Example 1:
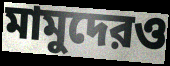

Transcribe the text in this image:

মামুদেরও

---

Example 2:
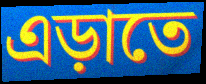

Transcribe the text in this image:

এড়াতে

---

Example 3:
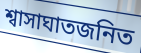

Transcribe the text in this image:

শ্বাসাঘাতজনিত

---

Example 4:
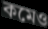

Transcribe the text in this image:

কমেও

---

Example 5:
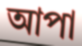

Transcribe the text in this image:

আপা